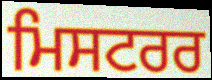
ਮਿਸਟਰਰ